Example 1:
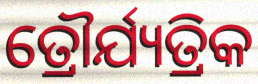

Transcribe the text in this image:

ତ୍ରୌର୍ଯ୍ୟତ୍ରିକ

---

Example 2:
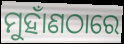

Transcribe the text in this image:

ମୁହାଁଣଠାରେ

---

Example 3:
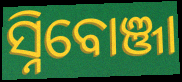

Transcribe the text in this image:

ସ୍ନିବୋଞ୍ଜା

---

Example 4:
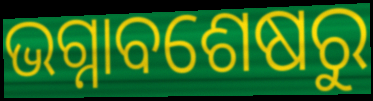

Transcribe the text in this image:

ଭଗ୍ନାବଶେଷରୁ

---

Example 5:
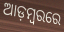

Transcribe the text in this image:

ଆଡ଼ମ୍ୱରରେ